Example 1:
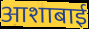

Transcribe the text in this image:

आशाबाई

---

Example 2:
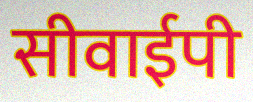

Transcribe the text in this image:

सीवाईपी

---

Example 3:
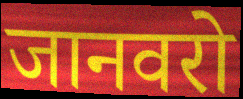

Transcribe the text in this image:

जानवरो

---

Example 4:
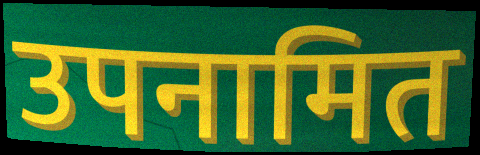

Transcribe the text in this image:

उपनामित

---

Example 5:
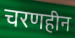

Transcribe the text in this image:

चरणहीन